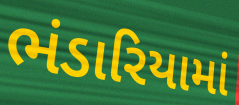
ભંડારિયામાં